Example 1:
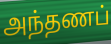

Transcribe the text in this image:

அந்தணப்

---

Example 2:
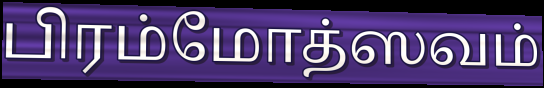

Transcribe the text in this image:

பிரம்மோத்ஸவம்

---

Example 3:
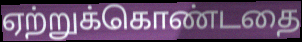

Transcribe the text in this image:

ஏற்றுக்கொண்டதை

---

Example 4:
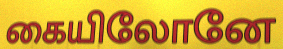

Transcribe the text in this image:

கையிலோனே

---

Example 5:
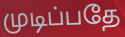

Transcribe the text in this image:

முடிப்பதே